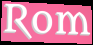
Rom